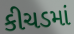
કીચડમાં